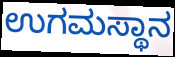
ಉಗಮಸ್ಥಾನ